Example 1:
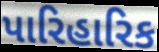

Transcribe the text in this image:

પારિહારિક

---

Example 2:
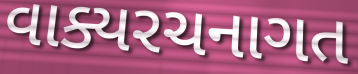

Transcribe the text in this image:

વાક્યરચનાગત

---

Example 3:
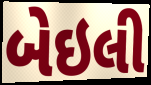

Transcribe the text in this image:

બેઇલી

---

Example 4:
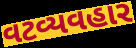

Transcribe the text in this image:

વટવ્યવહાર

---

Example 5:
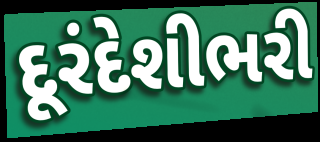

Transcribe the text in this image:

દૂરંદેશીભરી